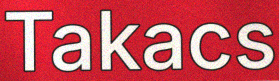
Takacs